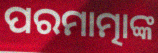
ପରମାତ୍ମାଙ୍କ